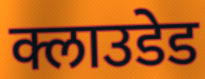
क्लाउडेड